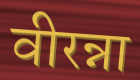
वीरन्ना